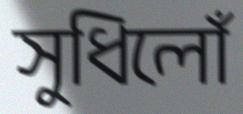
সুধিলোঁ